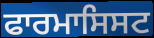
ਫਾਰਮਾਸਿਸਟ